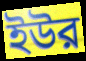
ইউর